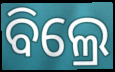
ବିଲ୍ରେ